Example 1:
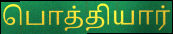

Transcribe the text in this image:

பொத்தியார்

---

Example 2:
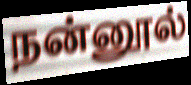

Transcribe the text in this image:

நன்னூல்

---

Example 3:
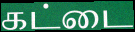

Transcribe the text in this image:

கட்டை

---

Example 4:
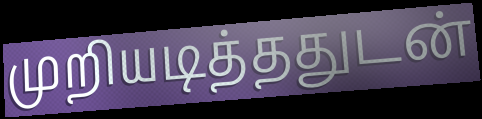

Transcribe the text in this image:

முறியடித்ததுடன்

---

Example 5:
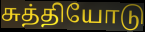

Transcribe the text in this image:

சுத்தியோடு